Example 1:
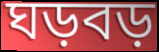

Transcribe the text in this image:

ঘড়বড়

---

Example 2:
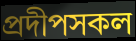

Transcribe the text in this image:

প্রদীপসকল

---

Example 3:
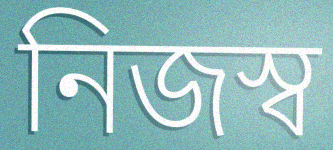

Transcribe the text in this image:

নিজস্ব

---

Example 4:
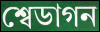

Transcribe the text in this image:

শ্বেডাগন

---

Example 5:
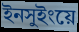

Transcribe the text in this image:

ইনসুইংয়ে